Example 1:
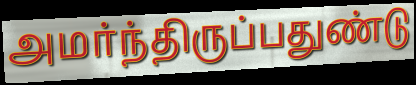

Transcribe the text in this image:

அமர்ந்திருப்பதுண்டு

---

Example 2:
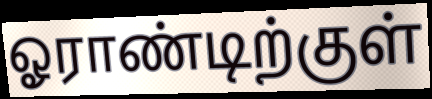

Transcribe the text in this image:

ஓராண்டிற்குள்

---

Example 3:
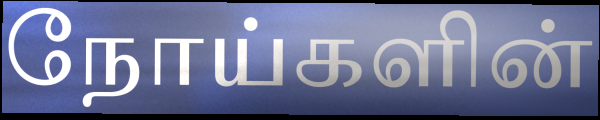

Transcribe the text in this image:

நோய்களின்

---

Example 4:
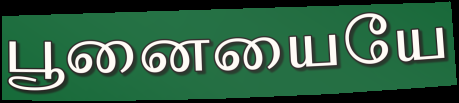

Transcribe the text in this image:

பூனையையே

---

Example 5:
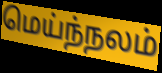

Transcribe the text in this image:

மெய்ந்நலம்